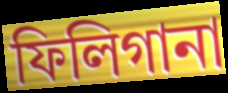
ফিলিগানা